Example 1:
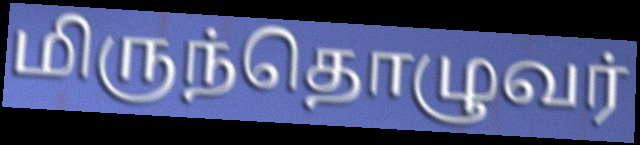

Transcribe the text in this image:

மிருந்தொழுவர்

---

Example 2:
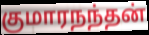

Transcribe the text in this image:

குமாரநந்தன்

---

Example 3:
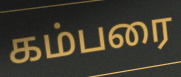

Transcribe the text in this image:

கம்பரை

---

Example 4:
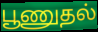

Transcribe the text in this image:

பூணுதல்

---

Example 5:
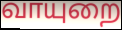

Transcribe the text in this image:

வாயுறை